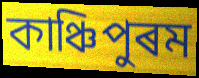
কাঞ্চিপুৰম